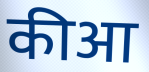
कीआ